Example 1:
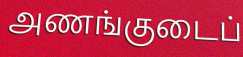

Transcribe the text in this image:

அணங்குடைப்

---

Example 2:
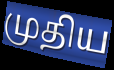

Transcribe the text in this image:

முதிய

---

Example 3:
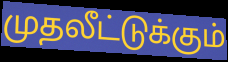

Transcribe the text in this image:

முதலீட்டுக்கும்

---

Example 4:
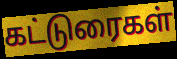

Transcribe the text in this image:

கட்டுரைகள்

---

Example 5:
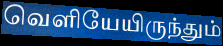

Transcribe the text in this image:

வெளியேயிருந்தும்